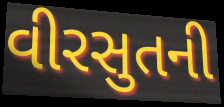
વીરસુતની